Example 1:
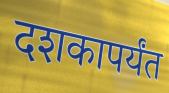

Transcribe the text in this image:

दशकापर्यंत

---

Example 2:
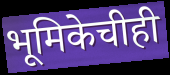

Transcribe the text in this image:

भूमिकेचीही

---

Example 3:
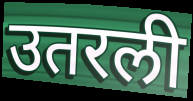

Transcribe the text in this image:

उतरली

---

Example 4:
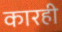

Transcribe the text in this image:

कारही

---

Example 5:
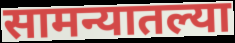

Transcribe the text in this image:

सामन्यातल्या